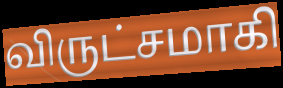
விருட்சமாகி